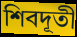
শিবদূতী